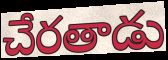
చేరతాడు